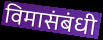
विमासंबंधी